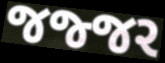
જજ્જર